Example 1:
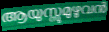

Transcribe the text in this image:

ആയുസ്സുമുഴുവൻ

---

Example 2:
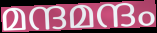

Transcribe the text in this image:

മന്ദമന്ദം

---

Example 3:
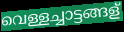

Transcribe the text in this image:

വെള്ളച്ചാട്ടങ്ങള്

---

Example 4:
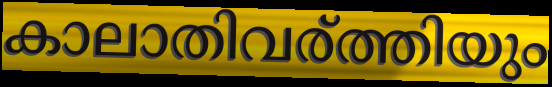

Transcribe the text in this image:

കാലാതിവര്ത്തിയും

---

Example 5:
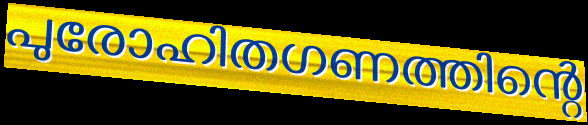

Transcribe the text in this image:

പുരോഹിതഗണത്തിന്റെ